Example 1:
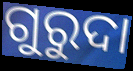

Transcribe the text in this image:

ଗୁରୁଦା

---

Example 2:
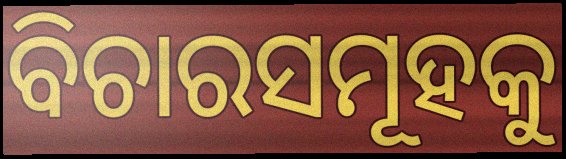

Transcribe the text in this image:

ବିଚାରସମୂହକୁ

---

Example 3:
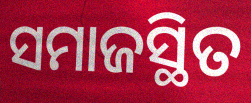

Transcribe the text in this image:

ସମାଜସ୍ଥିତ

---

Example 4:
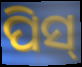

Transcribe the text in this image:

ପିସ୍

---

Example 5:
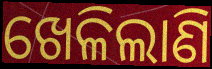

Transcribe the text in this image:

ଖେଳିଲାଣି